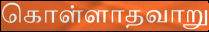
கொள்ளாதவாறு